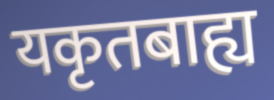
यकृतबाह्य